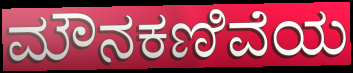
ಮೌನಕಣಿವೆಯ